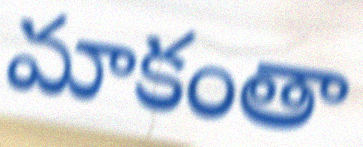
మాకంతా